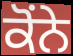
ਕੋਂਨੇ